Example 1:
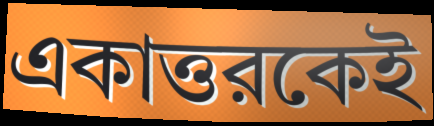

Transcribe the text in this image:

একাত্তরকেই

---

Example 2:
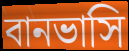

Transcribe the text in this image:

বানভাসি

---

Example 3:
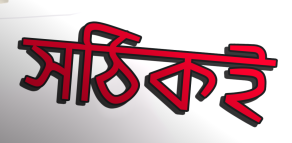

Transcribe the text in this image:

সঠিকই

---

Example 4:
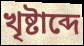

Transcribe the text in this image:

খৃষ্টাব্দে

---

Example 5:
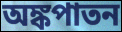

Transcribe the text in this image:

অঙ্কপাতন